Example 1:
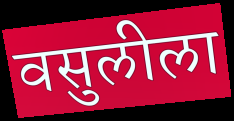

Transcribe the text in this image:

वसुलीला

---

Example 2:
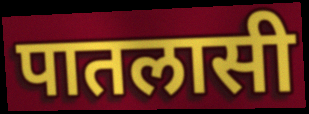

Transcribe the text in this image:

पातलासी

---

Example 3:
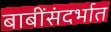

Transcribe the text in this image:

बाबींसंदर्भात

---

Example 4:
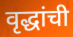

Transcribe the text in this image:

वृद्धांची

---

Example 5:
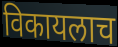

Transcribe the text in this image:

विकायलाच